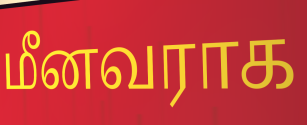
மீனவராக